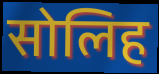
सोलिह